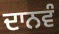
ਦਾਨਵੰ